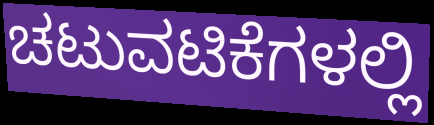
ಚಟುವಟಿಕೆಗಳಲ್ಲಿ